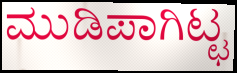
ಮುಡಿಪಾಗಿಟ್ಟ